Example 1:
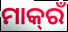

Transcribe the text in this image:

ମାକ୍‌ରଁ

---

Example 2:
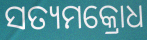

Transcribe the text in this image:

ସତ୍ୟମକ୍ରୋଧ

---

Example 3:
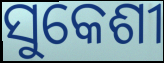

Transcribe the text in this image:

ସୁକେଶୀ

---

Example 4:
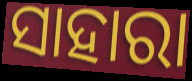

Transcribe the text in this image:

ସାହାରା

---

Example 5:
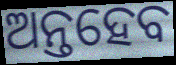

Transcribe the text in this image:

ଅନ୍ତହେବ